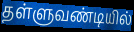
தள்ளுவண்டியில்